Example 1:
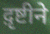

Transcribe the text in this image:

द़ृष्टीने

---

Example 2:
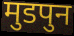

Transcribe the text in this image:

मुडपुन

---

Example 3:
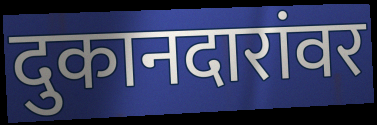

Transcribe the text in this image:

दुकानदारांवर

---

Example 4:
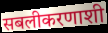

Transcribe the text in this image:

सबलीकरणाशी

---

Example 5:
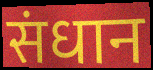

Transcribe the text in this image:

संधान